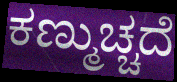
ಕಣ್ಮುಚ್ಚದೆ